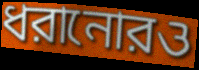
ধরানোরও